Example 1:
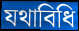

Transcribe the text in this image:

যথাবিধি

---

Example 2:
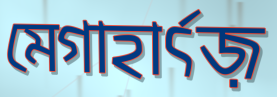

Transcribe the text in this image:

মেগাহার্ৎজ়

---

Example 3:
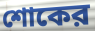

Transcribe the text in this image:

শোকের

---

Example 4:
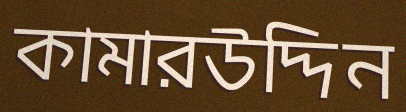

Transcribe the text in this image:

কামারউদ্দিন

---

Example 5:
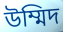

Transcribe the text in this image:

উম্মিদ